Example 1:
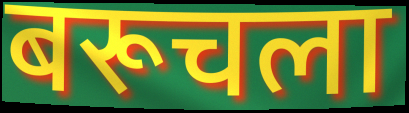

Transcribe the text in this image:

बरूचला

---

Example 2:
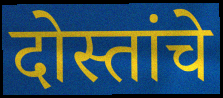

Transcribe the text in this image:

दोस्तांचे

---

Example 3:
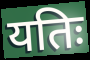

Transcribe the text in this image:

यतिः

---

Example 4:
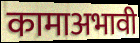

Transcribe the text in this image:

कामाअभावी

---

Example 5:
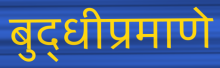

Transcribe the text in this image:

बुद्धीप्रमाणे